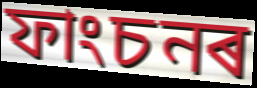
ফাংচনৰ